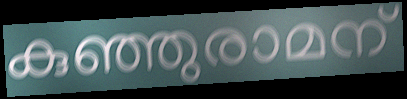
കുഞ്ഞുരാമന്